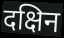
दक्षिन